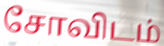
சோவிடம்